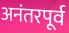
अनंतरपूर्व